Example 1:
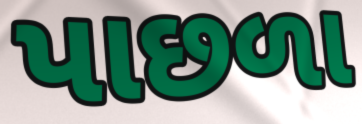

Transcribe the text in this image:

પાછળા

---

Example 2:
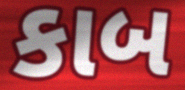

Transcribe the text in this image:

કાબ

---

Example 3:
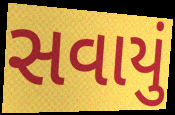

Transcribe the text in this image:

સવાયું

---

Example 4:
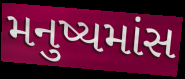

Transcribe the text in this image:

મનુષ્યમાંસ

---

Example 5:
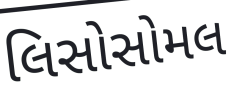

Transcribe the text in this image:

લિસોસોમલ